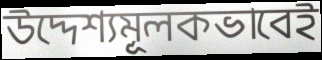
উদ্দেশ্যমূলকভাবেই